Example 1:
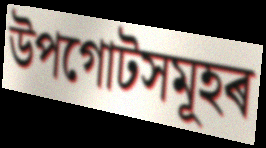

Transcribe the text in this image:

উপগোটসমূহৰ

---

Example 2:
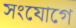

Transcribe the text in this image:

সংযোগে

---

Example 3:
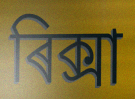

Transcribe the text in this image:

ৰিক্সা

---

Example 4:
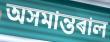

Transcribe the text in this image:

অসমান্তৰাল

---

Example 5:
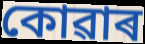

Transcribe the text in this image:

কোৱাৰ